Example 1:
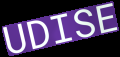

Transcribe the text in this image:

UDISE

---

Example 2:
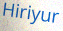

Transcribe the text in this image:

Hiriyur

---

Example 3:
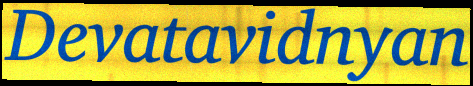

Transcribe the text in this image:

Devatavidnyan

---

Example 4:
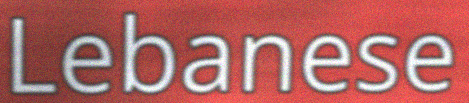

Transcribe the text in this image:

Lebanese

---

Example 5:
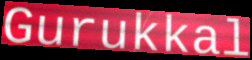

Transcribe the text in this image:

Gurukkal